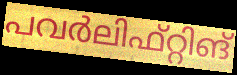
പവർലിഫ്റ്റിങ്